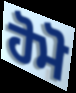
ਹੋਮੋ